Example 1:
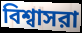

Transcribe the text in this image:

বিশ্বাসরা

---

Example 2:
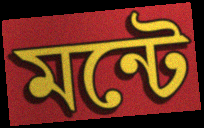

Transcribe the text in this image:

মন্টে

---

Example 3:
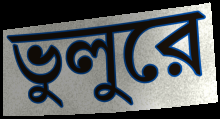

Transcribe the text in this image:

ভুলুরে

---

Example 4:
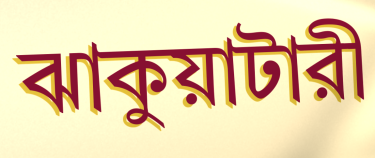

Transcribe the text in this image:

ঝাকুয়াটারী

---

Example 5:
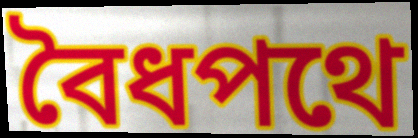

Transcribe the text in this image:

বৈধপথে